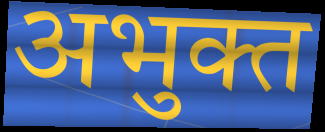
अभुक्त